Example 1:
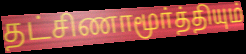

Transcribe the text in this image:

தட்சிணாமூர்த்தியும்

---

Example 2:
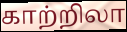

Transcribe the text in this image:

காற்றிலா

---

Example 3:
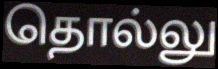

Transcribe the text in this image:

தொல்லு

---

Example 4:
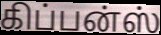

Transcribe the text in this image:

கிப்பன்ஸ்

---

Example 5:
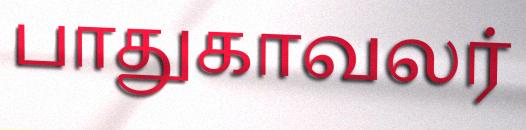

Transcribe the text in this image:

பாதுகாவலர்